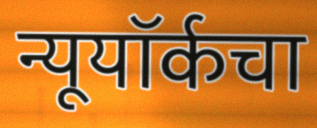
न्यूयॉर्कचा